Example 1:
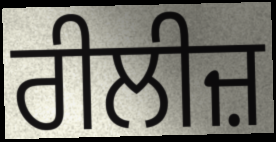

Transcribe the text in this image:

ਰੀਲੀਜ਼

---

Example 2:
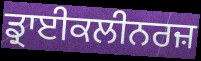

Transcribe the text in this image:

ਡ੍ਰਾਈਕਲੀਨਰਜ਼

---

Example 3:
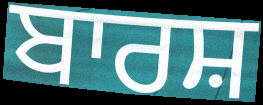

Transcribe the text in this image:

ਬਾਰਸ਼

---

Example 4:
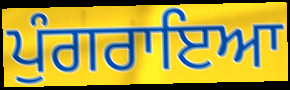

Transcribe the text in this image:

ਪੁੰਗਰਾਇਆ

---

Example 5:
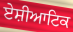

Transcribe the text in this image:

ਏਸ਼ੀਆਟਿਕ